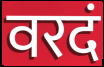
वरदं